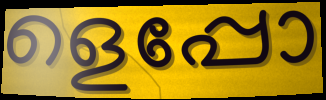
ളെപ്പോ